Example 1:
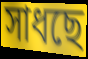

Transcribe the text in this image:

সাধছে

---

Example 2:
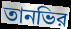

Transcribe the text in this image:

তানভির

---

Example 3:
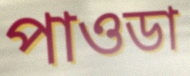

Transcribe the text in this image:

পাওডা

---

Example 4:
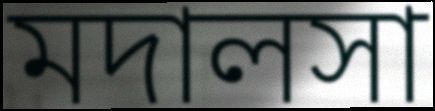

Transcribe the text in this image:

মদালসা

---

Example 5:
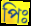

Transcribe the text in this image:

পিঃ